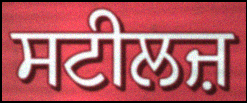
ਸਟੀਲਜ਼